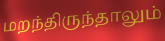
மறந்திருந்தாலும்